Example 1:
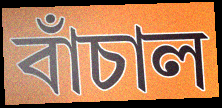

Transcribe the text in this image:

বাঁচাল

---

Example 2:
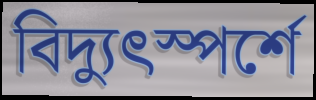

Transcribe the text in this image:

বিদ্যুৎস্পর্শে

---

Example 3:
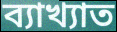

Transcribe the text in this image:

ব্যাখ্যাত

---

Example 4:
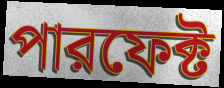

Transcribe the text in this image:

পারফেক্ট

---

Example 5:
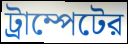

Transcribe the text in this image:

ট্রাম্পেটের